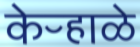
केऱ्हाळे